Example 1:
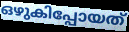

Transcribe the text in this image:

ഒഴുകിപ്പോയത്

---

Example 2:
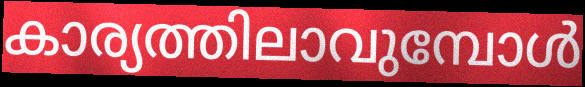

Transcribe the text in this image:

കാര്യത്തിലാവുമ്പോൾ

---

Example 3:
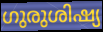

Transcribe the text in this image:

ഗുരുശിഷ്യ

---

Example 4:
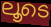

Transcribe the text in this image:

ലൂടെ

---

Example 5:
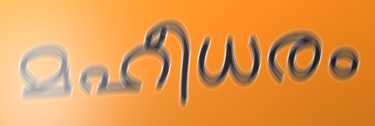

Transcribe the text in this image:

മഹീധരം